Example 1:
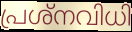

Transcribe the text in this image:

പ്രശ്നവിധി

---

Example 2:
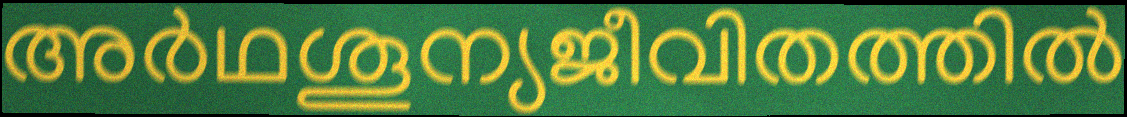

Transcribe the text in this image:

അർഥശൂന്യജീവിതത്തിൽ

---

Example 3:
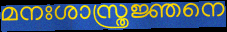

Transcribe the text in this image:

മനഃശാസ്ത്രജ്ഞനെ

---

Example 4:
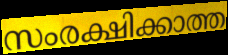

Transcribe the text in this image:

സംരക്ഷിക്കാത്ത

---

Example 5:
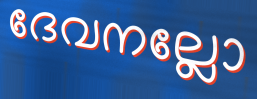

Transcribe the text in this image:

ദേവനല്ലോ